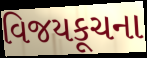
વિજયકૂચના